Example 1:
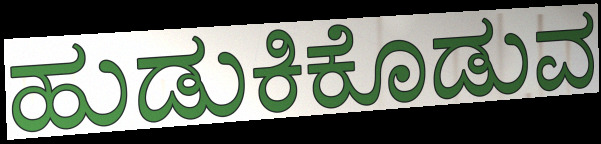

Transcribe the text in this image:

ಹುಡುಕಿಕೊಡುವ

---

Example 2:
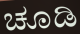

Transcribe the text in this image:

ಚೂಡಿ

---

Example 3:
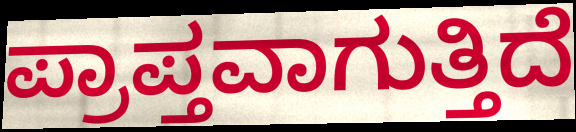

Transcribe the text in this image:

ಪ್ರಾಪ್ತವಾಗುತ್ತಿದೆ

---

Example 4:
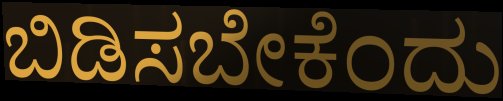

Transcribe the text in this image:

ಬಿಡಿಸಬೇಕೆಂದು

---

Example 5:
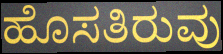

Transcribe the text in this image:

ಹೊಸತಿರುವು